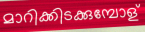
മാറിക്കിടക്കുമ്പോള്